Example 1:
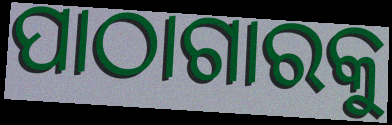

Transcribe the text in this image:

ପାଠାଗାରକୁ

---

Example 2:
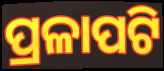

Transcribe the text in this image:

ପ୍ରଳାପଟି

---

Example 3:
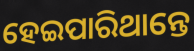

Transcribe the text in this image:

ହେଇପାରିଥାନ୍ତେ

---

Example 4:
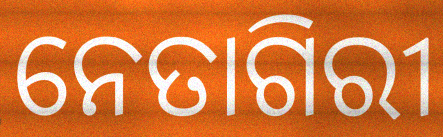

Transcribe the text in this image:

ନେତାଗିରୀ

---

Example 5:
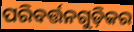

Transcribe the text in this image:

ପରିବର୍ତ୍ତନଗୁଡ଼ିକର